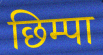
छिम्पा